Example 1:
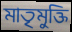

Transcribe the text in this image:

মাতৃমুক্তি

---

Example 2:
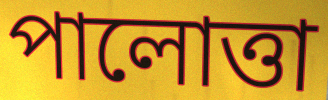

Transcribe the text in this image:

পালোত্তা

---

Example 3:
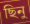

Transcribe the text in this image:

ছিনু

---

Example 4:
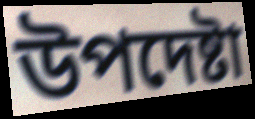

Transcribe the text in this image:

উপদেষ্টা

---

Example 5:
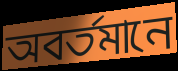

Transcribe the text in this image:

অবর্তমানে